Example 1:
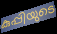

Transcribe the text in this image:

കുപ്പിയുടെ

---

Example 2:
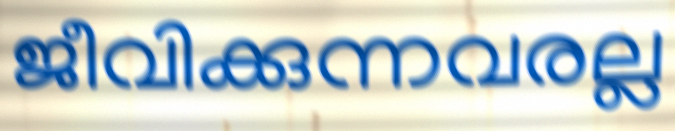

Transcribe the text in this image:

ജീവിക്കുന്നവരല്ല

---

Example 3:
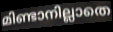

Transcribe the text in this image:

മിണ്ടാനില്ലാതെ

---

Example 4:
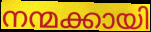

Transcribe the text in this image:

നന്മക്കായി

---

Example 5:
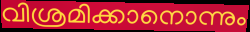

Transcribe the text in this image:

വിശ്രമിക്കാനൊന്നും